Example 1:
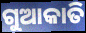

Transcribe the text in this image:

ଗୁଆକାତି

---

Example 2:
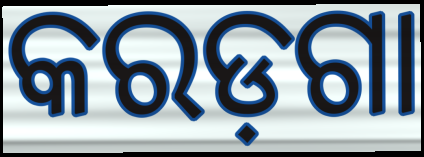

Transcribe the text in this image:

କରଡ଼ଗା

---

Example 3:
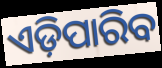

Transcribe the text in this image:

ଏଡ଼ିପାରିବ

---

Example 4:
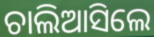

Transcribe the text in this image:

ଚାଲିଆସିଲେ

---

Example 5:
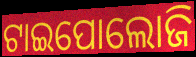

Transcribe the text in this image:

ଟାଇପୋଲୋଜି